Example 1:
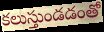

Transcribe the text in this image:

కలుస్తుండడంతో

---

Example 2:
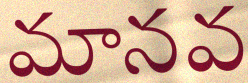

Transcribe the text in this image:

మానవ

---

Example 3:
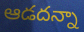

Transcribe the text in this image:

ఆడదన్నా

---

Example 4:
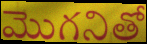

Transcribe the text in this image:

మొగనితో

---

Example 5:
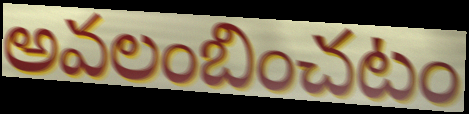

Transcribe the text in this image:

అవలంబించటం